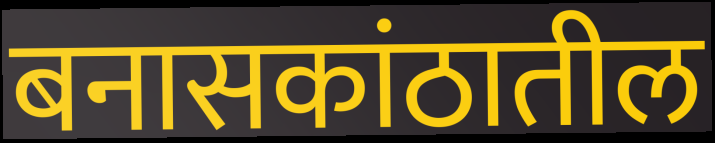
बनासकांठातील